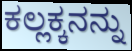
ಕಲ್ಲಕ್ಕನನ್ನು